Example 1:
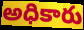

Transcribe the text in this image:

అధికారు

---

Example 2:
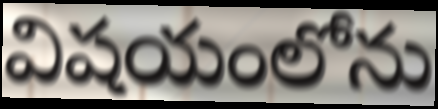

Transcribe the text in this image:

విషయంలోను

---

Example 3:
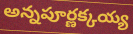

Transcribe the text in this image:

అన్నపూర్ణక్కయ్య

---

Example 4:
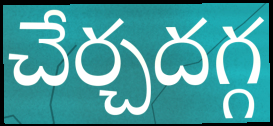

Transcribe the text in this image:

చేర్చదగ్గ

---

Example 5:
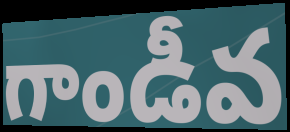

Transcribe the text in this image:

గాండీవ